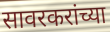
सावरकरांच्या